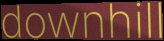
downhill